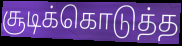
சூடிக்கொடுத்த